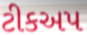
ટીકઅપ